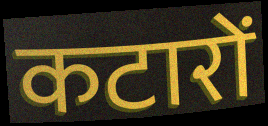
कटारों